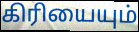
கிரியையும்